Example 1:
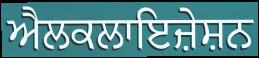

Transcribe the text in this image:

ਐਲਕਲਾਇਜ਼ੇਸ਼ਨ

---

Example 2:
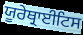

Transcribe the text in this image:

ਯੂਰੇਥ੍ਰਾਈਟਿਸ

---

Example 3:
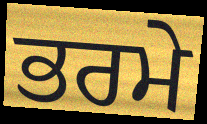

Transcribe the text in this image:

ਭਰਮੇ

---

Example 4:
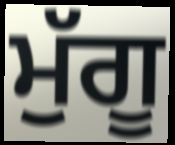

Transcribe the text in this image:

ਮੁੱਗੂ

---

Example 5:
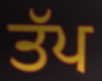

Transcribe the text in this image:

ਤੱਪ